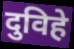
दुविहे